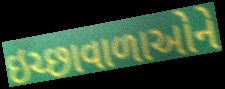
ઇચ્છાવાળાઓને